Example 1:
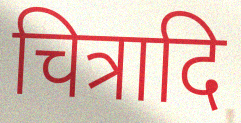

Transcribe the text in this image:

चित्रादि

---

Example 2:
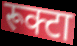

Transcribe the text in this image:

रूक्टा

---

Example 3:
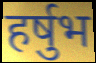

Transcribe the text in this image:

हर्षुभ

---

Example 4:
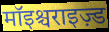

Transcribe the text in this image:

मॉइश्चराइज़्ड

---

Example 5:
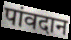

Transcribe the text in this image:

पांवदान